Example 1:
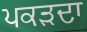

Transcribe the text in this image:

ਪਕੜਦਾ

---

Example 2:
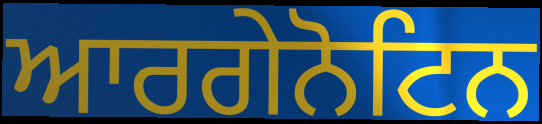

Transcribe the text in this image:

ਆਰਗੇਨੋਟਿਨ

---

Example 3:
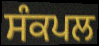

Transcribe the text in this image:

ਸੰਕਪਲ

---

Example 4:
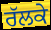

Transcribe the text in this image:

ਰੱਲਕੇ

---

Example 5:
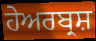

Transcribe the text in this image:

ਹੇਅਰਬ੍ਰਸ਼